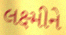
લક્ષ્મીને